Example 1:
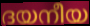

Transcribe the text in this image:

ദയനീയ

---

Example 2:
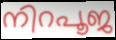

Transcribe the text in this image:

നിറപൂജ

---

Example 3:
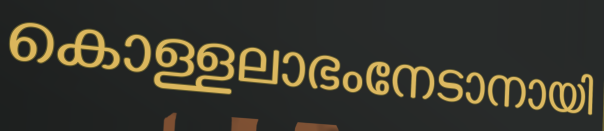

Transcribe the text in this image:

കൊള്ളലാഭംനേടാനായി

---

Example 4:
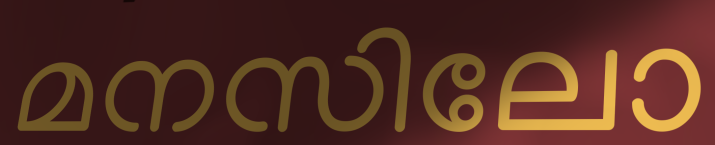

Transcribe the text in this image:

മനസിലോ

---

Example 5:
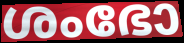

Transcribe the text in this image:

ശംഭോ